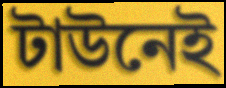
টাউনেই